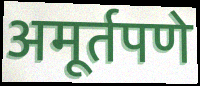
अमूर्तपणे